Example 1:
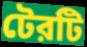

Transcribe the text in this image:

টেরটি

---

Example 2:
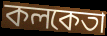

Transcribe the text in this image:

কলকেতা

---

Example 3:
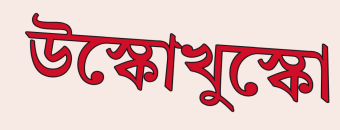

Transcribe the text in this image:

উস্কোখুস্কো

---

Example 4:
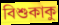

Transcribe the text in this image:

বিশুকাকু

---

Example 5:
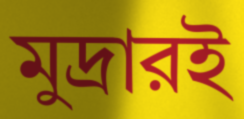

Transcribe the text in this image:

মুদ্রারই